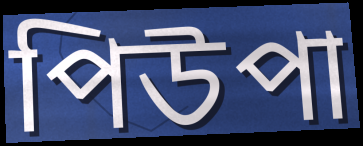
পিউপা